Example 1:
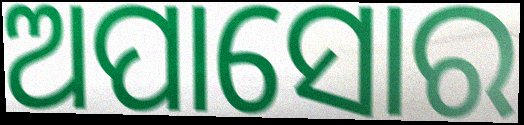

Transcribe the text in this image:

ଅପାସୋର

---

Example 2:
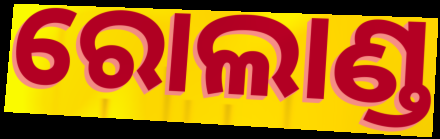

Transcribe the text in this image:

ରୋଲାଣ୍ଡ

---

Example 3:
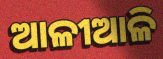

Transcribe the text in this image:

ଆଳୀଆଳି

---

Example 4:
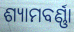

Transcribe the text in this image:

ଶ୍ୟାମବର୍ଣ୍ଣା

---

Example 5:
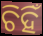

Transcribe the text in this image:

ଚିହିଁ